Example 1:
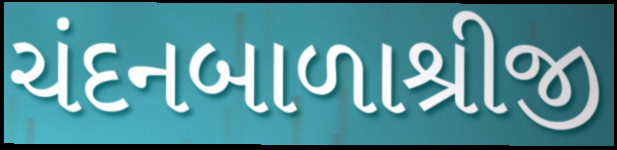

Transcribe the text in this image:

ચંદનબાળાશ્રીજી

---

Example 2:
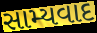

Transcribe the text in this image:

સામ્યવાદ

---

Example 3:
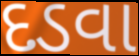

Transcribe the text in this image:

દડવા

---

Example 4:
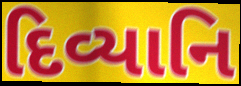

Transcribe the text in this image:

દિવ્યાનિ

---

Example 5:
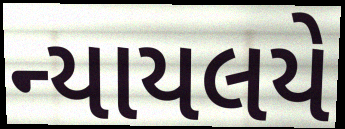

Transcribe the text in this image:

ન્યાયલયે